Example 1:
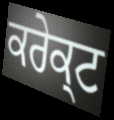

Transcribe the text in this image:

ਕਰੇਕ੍ਟ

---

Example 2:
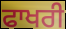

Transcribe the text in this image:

ਫਾਖਰੀ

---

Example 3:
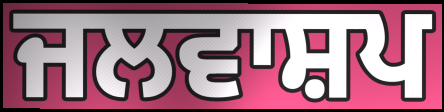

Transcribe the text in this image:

ਜਲਵਾਸ਼ਪ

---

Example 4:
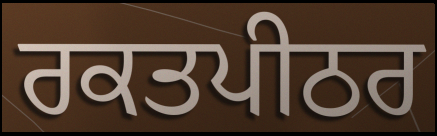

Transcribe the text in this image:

ਰਕਤਪੀਠਰ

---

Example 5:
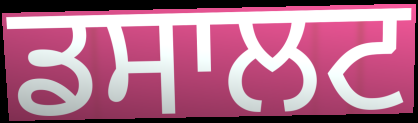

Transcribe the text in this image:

ਡਸਾਲਟ